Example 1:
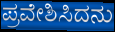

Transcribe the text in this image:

ಪ್ರವೇಶಿಸಿದನು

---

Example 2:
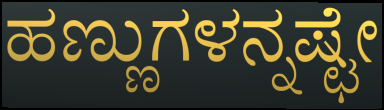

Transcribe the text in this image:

ಹಣ್ಣುಗಳನ್ನಷ್ಟೇ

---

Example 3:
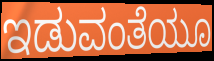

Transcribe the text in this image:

ಇಡುವಂತೆಯೂ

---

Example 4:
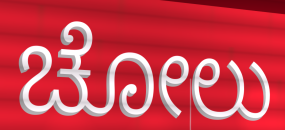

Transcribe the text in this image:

ಚೋಲು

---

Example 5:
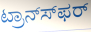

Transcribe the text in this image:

ಟ್ರಾನ್ಸ್‍ಫರ್